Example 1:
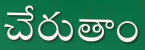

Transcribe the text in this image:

చేరుతాం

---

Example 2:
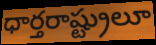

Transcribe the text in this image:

ధార్తరాష్ట్రులూ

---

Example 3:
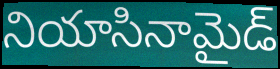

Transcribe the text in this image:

నియాసినామైడ్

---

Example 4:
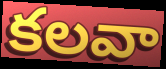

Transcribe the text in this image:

కలవా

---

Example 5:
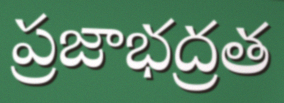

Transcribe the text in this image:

ప్రజాభద్రత